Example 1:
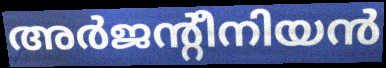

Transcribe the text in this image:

അർജന്റീനിയൻ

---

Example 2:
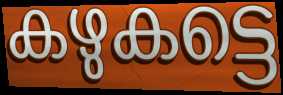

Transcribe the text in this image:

കഴുകട്ടെ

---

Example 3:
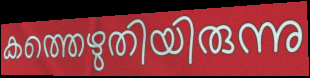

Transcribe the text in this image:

കത്തെഴുതിയിരുന്നു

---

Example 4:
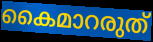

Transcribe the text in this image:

കൈമാറരുത്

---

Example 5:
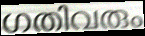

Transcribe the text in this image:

ഗതിവരും